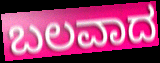
ಬಲವಾದ